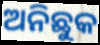
ଅନିଛୁକ